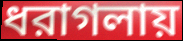
ধরাগলায়